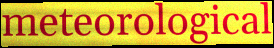
meteorological